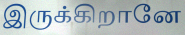
இருக்கிறானே